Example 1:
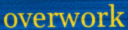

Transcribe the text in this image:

overwork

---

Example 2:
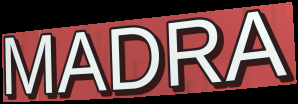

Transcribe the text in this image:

MADRA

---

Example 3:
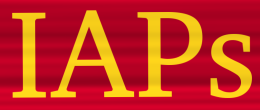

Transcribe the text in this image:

IAPs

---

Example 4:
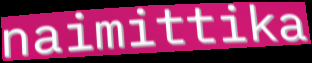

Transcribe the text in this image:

naimittika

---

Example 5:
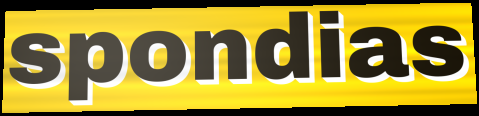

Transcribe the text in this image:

spondias